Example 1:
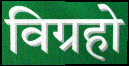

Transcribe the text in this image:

विग्रहो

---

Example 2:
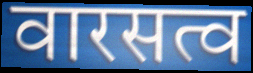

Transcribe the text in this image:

वारसत्व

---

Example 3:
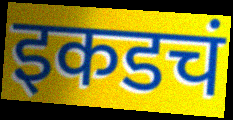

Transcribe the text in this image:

इकडचं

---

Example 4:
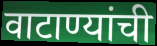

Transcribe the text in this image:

वाटाण्यांची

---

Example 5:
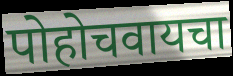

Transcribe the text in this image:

पोहोचवायचा